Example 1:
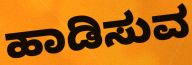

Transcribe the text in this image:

ಹಾಡಿಸುವ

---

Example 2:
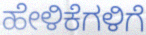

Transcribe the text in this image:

ಹೇಳಿಕೆಗಳಿಗೆ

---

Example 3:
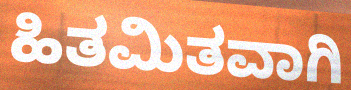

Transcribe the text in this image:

ಹಿತಮಿತವಾಗಿ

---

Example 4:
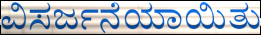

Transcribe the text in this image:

ವಿಸರ್ಜನೆಯಾಯಿತು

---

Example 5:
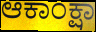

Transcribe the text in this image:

ಆಕಾಂಕ್ಷಾ